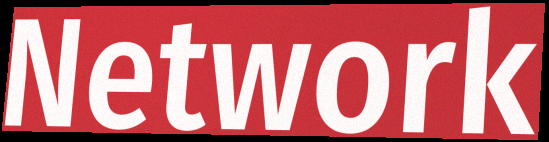
Network